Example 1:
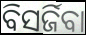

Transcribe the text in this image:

ବିସର୍ଜିବା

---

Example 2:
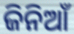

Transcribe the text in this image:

ଜିନିଆଁ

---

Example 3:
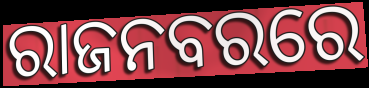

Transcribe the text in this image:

ରାଜନବରରେ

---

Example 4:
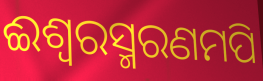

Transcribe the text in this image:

ଈଶ୍ଵରସ୍ମରଣମପି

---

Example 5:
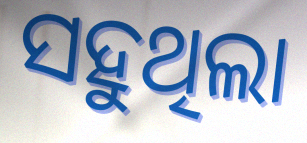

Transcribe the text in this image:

ସହୁଥିଲା